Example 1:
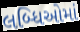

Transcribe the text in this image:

લબ્ધિઓમાં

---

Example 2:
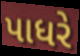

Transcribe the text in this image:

પાધરે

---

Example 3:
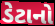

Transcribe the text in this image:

ડેટાનો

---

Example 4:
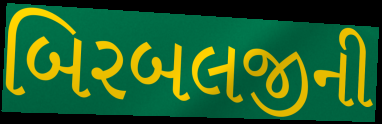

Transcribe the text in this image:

બિરબલજીની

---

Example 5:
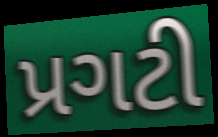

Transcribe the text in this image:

પ્રગટી